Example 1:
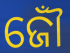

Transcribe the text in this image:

ଜୌଁ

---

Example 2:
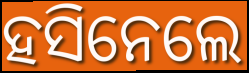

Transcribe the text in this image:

ହସିନେଲେ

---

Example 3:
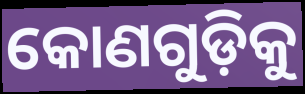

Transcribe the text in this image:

କୋଣଗୁଡ଼ିକୁ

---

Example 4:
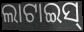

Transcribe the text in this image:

ଲାଟାଇସ୍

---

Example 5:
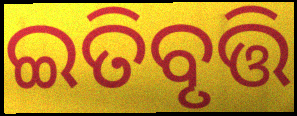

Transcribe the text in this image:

ଇତିବୃତ୍ତି